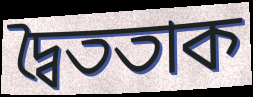
দ্বৈততাক